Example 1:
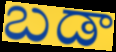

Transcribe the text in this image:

బడా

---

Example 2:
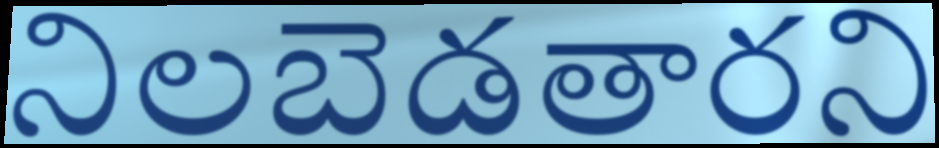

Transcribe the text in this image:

నిలబెడతారని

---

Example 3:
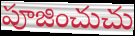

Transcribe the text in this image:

పూజించుచు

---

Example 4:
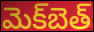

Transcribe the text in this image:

మెక్‌బెత్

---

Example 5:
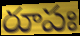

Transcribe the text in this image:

రూపః